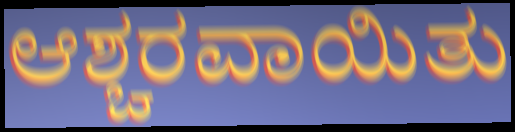
ಆಶ್ಚರವಾಯಿತು